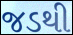
જડથી